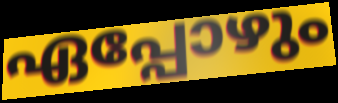
ഏപ്പോഴും